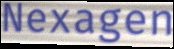
Nexagen